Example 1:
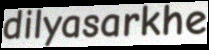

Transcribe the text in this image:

dilyasarkhe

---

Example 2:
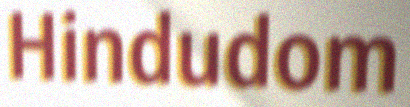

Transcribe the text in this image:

Hindudom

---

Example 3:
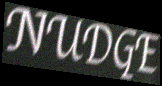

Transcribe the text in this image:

NUDGE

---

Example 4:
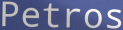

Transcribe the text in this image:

Petros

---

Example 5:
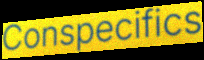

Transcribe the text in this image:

Conspecifics